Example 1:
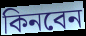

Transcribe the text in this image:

কিনবেন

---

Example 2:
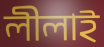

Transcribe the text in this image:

লীলাই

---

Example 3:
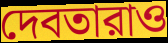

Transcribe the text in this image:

দেবতারাও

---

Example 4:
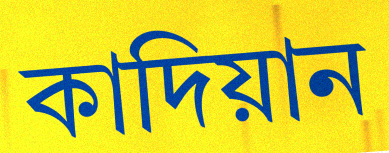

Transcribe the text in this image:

কাদিয়ান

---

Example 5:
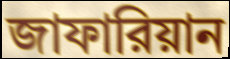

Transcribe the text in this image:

জাফারিয়ান